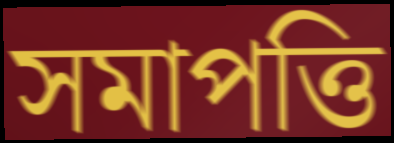
সমাপত্তি